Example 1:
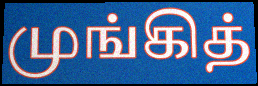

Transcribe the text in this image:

முங்கித்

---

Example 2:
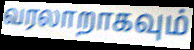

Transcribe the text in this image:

வரலாறாகவும்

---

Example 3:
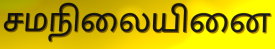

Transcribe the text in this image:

சமநிலையினை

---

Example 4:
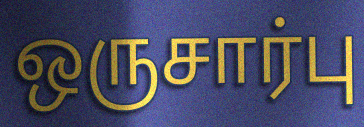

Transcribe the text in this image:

ஒருசார்பு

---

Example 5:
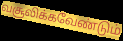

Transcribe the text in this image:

வசூலிக்கவேண்டும்